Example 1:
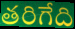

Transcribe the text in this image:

తరిగేది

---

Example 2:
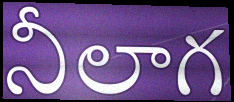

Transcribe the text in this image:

నీలాగ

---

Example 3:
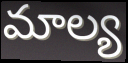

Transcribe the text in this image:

మాల్య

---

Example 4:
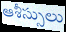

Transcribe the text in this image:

ఆశీస్సులు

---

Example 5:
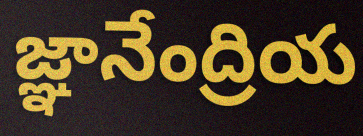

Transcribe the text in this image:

జ్ఞానేంద్రియ